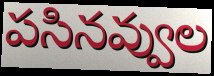
పసినవ్వుల